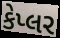
કેપ્લર